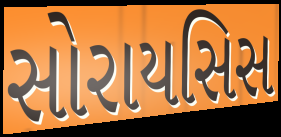
સોરાયસિસ